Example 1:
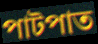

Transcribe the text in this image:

পাটপাত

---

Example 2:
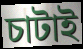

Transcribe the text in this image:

চাটাই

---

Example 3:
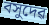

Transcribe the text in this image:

বসুদেৱ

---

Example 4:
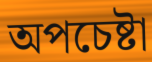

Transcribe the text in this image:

অপচেষ্টা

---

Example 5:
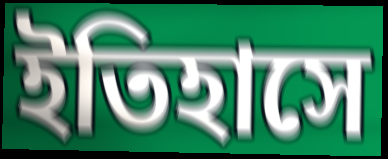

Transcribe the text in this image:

ইতিহাসে